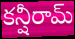
కన్షీరామ్